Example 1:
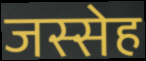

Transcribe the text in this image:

जस्सेह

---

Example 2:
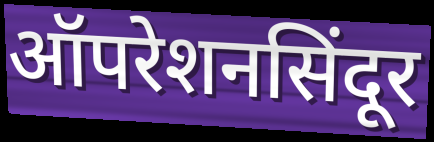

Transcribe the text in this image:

ऑपरेशनसिंदूर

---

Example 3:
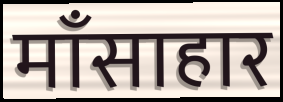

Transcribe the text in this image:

माँसाहार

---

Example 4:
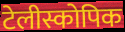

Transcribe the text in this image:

टेलीस्कोपिक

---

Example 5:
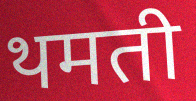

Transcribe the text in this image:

थमती